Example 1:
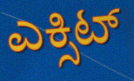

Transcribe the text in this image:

ಎಕ್ಸಿಟ್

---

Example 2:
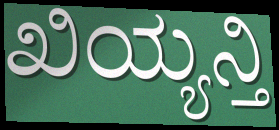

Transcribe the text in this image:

ಖಿಯ್ಯನ್ತಿ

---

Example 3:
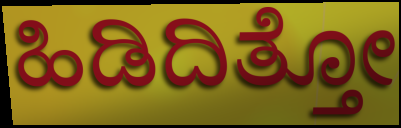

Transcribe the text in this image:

ಹಿಡಿದಿತ್ತೋ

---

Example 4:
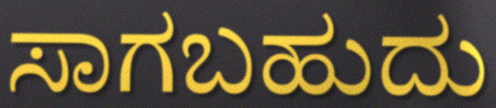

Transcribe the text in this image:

ಸಾಗಬಹುದು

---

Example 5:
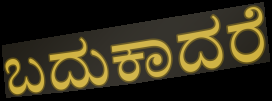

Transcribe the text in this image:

ಬದುಕಾದರೆ